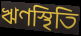
ঋণস্থিতি